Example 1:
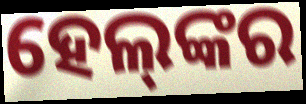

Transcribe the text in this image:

ହେଲ୍‌ଙ୍କର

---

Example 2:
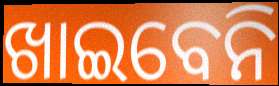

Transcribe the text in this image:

ଖାଇବେନି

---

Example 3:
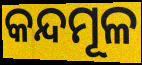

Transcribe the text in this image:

କନ୍ଦମୂଳ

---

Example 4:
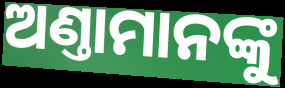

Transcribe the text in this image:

ଅଣ୍ତାମାନଙ୍କୁ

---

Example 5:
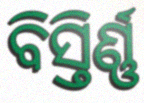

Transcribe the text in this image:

ବିସ୍ତିର୍ଣ୍ଣ